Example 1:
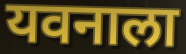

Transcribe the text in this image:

यवनाला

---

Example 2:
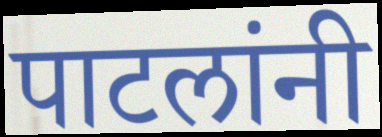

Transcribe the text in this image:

पाटलांनी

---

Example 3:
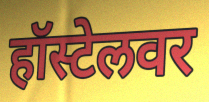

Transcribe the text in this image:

हॉस्टेलवर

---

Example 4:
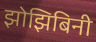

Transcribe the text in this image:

झोझिबिनी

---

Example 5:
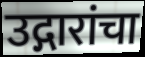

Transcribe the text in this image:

उद्गारांचा